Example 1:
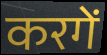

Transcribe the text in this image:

करगें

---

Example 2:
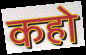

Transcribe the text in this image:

कहो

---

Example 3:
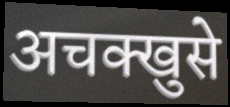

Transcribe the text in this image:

अचक्खुसे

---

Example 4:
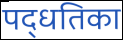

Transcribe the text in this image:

पद्धतिका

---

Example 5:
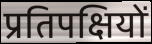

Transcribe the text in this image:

प्रतिपक्षियों